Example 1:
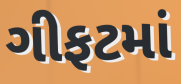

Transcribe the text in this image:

ગીફટમાં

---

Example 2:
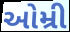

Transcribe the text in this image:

ઓમ્રી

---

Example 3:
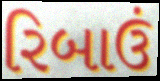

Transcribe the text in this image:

રિબાઉં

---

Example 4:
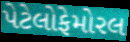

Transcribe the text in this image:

પેટેલોફેમોરલ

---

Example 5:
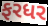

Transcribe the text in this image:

ફરધર